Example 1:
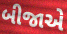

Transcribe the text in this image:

બીજાએ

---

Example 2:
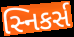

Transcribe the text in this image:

સ્નિકર્સ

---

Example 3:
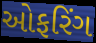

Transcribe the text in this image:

ઓફરિંગ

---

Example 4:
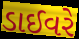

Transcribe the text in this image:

ડાઈવરે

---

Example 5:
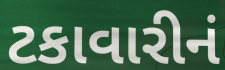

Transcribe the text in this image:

ટકાવારીનં